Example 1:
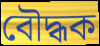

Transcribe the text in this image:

বৌদ্ধক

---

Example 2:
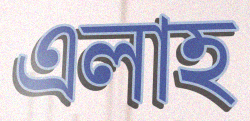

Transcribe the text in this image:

এলাহ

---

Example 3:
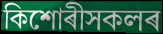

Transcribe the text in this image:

কিশোৰীসকলৰ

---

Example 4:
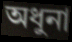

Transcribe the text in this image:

অধুনা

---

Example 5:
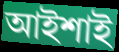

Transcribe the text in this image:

আইশাই